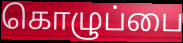
கொழுப்பை